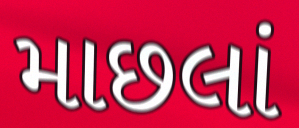
માછલાં